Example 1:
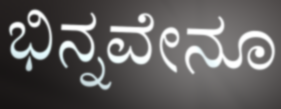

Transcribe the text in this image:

ಭಿನ್ನವೇನೂ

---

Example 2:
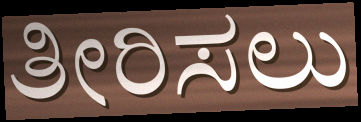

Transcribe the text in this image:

ತೀರಿಸಲು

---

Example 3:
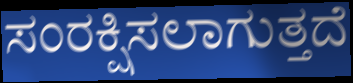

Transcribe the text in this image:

ಸಂರಕ್ಷಿಸಲಾಗುತ್ತದೆ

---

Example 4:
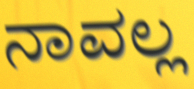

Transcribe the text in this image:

ನಾವಲ್ಲ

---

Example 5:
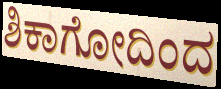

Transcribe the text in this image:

ಶಿಕಾಗೋದಿಂದ